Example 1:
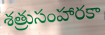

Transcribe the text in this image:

శత్రుసంహారకా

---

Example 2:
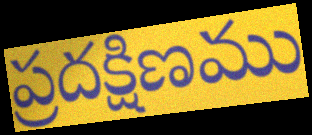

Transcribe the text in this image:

ప్రదక్షిణము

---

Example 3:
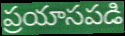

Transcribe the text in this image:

ప్రయాసపడి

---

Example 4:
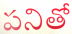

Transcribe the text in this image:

పనితో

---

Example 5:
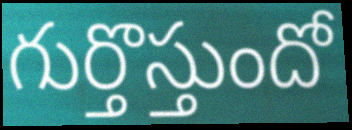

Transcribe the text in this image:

గుర్తొస్తుందో